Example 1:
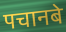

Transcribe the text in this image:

पचानबे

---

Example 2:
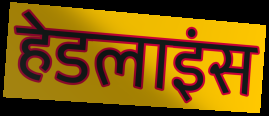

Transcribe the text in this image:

हेडलाइंस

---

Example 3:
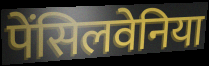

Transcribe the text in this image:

पेंसिलवेनिया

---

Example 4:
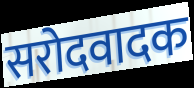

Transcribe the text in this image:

सरोदवादक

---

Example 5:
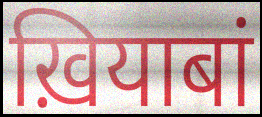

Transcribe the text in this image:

ख़ियाबां